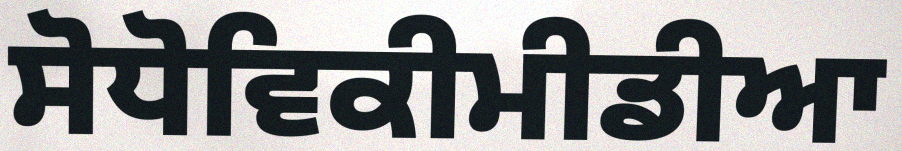
ਸੋਧੋਵਿਕੀਮੀਡੀਆ